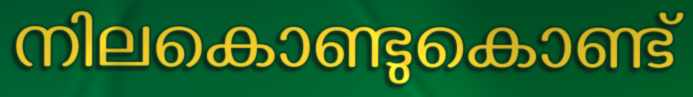
നിലകൊണ്ടുകൊണ്ട്